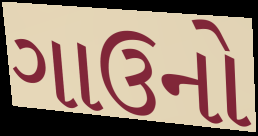
ગાઉનો